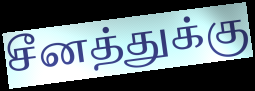
சீனத்துக்கு